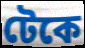
টেকে